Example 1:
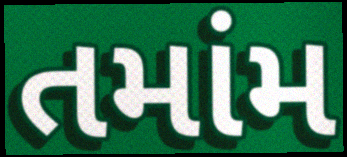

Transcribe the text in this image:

તમાંમ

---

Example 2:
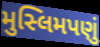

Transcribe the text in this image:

મુસ્લિમપણું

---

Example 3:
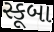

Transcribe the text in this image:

સ્કૂબા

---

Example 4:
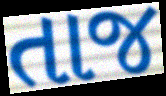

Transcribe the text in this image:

તાજ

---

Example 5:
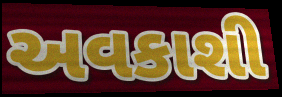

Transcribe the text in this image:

અવકાશી